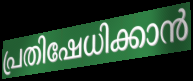
പ്രതിഷേധിക്കാൻ